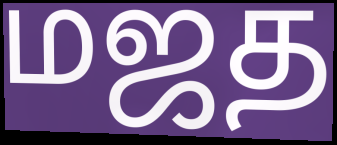
மஜத